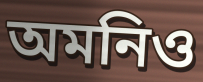
অমনিও